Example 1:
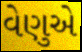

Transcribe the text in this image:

વેણુએ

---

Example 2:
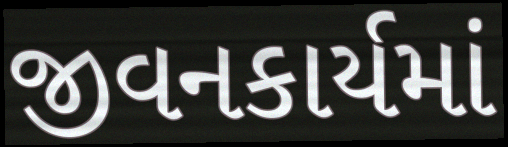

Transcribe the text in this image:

જીવનકાર્યમાં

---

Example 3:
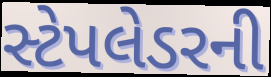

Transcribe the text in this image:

સ્ટેપલેડરની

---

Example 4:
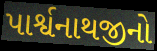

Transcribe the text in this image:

પાર્શ્વનાથજીનો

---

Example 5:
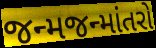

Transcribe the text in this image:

જન્મજન્માંતરો